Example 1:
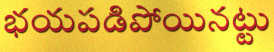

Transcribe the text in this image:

భయపడిపోయినట్టు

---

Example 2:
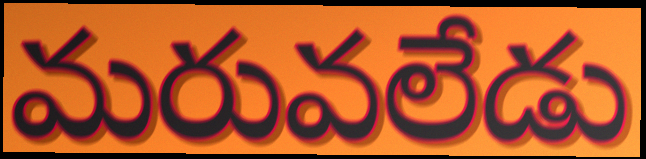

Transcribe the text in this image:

మరువలేడు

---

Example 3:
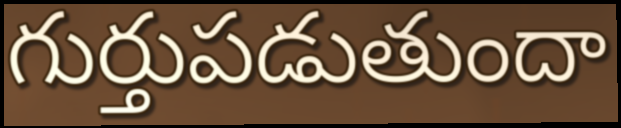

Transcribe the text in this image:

గుర్తుపడుతుందా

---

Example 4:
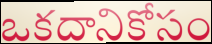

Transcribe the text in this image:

ఒకదానికోసం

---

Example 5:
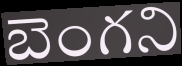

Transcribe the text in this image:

బెంగని